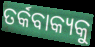
ତର୍କବାକ୍ୟକୁ